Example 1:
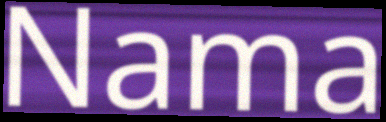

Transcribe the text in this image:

Nama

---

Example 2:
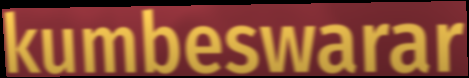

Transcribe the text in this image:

kumbeswarar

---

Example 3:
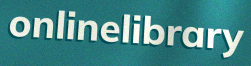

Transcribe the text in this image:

onlinelibrary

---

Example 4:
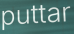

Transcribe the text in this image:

puttar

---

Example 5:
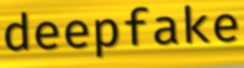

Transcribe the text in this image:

deepfake